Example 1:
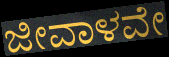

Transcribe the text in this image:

ಜೀವಾಳವೇ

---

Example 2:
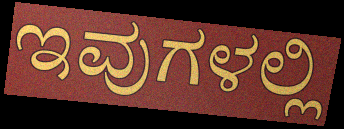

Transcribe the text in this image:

ಇವುಗಳಲ್ಲಿ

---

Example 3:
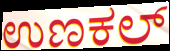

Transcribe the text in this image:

ಉಣಕಲ್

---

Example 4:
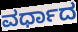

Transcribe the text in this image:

ವರ್ಧಾದ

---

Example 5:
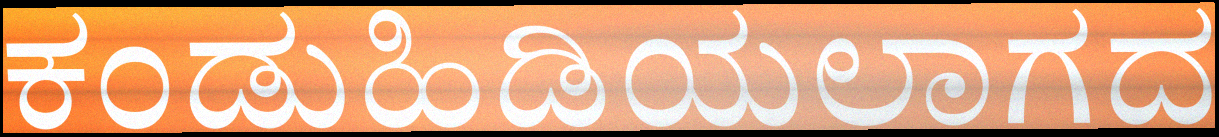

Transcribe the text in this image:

ಕಂಡುಹಿಡಿಯಲಾಗದ